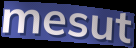
mesut